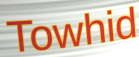
Towhid